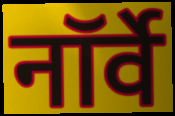
नॉर्वे